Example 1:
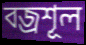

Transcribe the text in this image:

বজ্রশূল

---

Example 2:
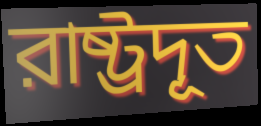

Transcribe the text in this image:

রাষ্ট্রদূত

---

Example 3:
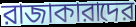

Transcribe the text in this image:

রাজাকারাদের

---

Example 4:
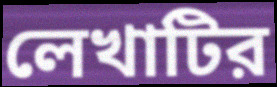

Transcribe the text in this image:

লেখাটির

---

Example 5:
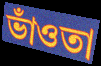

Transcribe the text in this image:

ভাঁওতা